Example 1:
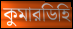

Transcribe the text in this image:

কুমারডিহি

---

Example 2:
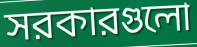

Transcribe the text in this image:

সরকারগুলো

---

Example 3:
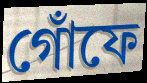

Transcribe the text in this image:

গোঁফে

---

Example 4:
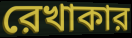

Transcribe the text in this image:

রেখাকার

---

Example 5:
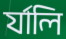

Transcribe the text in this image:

র্যালি